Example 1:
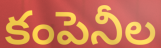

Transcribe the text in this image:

కంపెనీల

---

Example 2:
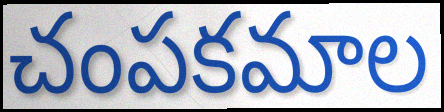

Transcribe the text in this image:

చంపకమాల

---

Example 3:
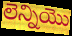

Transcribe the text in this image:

లెన్నియొ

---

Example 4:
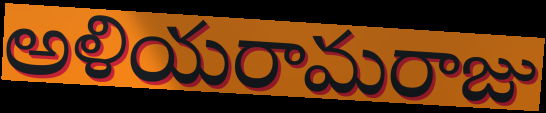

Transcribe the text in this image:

అళియరామరాజు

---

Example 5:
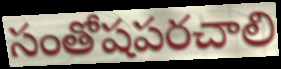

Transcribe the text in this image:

సంతోషపరచాలి